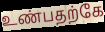
உண்பதற்கே